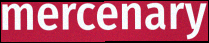
mercenary